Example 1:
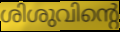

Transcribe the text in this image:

ശിശുവിന്റെ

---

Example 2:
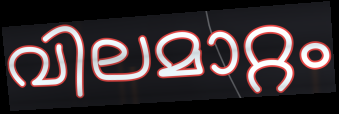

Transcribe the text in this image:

വിലമാറ്റം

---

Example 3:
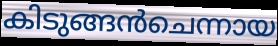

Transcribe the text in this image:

കിടുങ്ങൻചെന്നായ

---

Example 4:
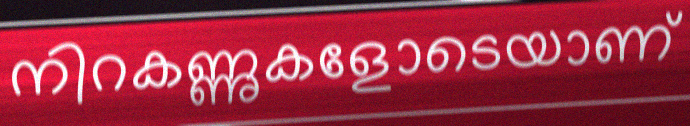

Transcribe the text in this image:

നിറകണ്ണുകളോടെയാണ്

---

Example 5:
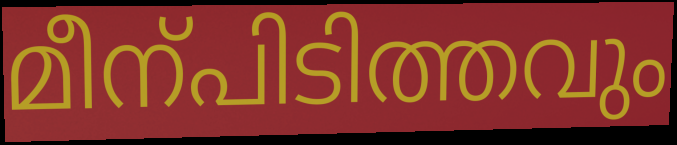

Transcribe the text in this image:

മീന്പിടിത്തവും